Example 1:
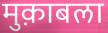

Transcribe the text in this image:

मुक़ाबला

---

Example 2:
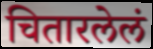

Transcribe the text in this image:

चितारलेलं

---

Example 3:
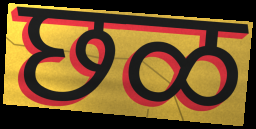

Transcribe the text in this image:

छळ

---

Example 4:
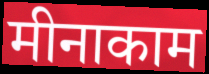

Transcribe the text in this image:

मीनाकाम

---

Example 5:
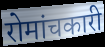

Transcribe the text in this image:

रोमांचकारी